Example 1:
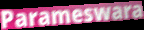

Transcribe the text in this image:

Parameswara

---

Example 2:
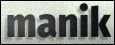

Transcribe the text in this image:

manik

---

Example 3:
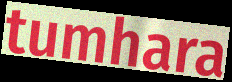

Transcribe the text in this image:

tumhara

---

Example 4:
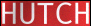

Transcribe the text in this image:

HUTCH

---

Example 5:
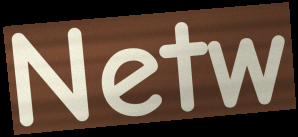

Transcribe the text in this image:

Netw